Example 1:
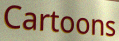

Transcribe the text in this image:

Cartoons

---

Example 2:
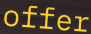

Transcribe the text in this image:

offer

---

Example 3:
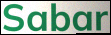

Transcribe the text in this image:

Sabar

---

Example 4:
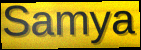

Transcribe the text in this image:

Samya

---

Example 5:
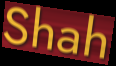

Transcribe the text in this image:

Shah